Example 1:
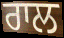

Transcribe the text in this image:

ਰਾਲ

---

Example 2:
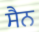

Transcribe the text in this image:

ਸੈਨ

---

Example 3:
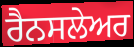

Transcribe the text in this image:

ਰੈਨਸਲੇਅਰ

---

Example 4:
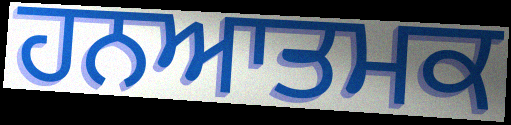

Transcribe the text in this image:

ਹਨਆਤਮਕ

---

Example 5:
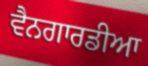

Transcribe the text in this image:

ਵੈਨਗਾਰਡੀਆ